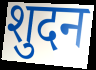
शुदन